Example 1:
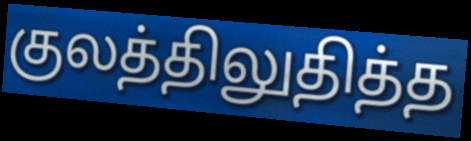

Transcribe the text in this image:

குலத்திலுதித்த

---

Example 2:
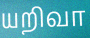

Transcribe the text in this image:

யறிவா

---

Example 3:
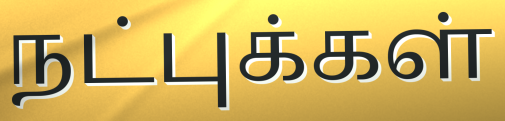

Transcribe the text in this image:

நட்புக்கள்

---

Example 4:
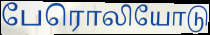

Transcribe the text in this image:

பேரொலியோடு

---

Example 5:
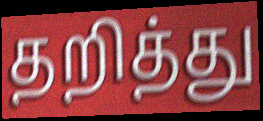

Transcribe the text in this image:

தறித்து